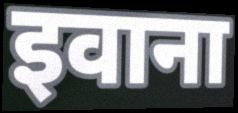
इवाना